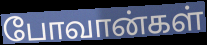
போவான்கள்